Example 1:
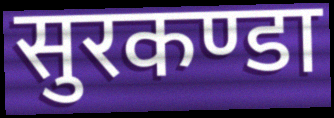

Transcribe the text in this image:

सुरकण्डा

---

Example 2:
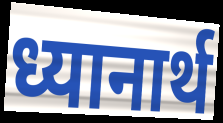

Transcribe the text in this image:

ध्यानार्थ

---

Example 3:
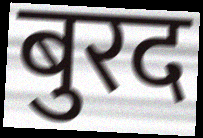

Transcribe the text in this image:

बुरद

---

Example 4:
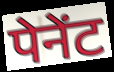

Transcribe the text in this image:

पेनेंट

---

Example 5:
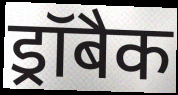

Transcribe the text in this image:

ड्रॉबैक